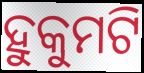
ହୁକୁମଟି